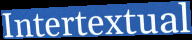
Intertextual